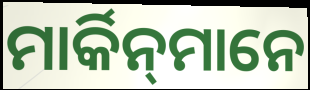
ମାର୍କିନ୍‌ମାନେ